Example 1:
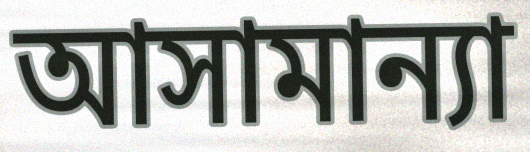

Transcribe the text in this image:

আসামান্যা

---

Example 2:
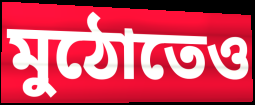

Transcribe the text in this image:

মুঠোতেও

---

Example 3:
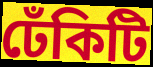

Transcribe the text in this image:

ঢেঁকিটি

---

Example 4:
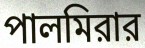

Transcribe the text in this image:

পালমিরার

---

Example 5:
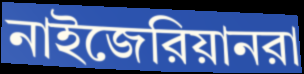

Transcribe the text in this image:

নাইজেরিয়ানরা